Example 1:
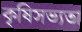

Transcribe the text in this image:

কৃষিসভ্যতা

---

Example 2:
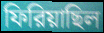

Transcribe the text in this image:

ফিরিয়াছিল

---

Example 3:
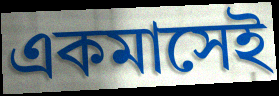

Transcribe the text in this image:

একমাসেই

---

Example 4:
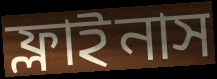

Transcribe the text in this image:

ফ্লাইনাস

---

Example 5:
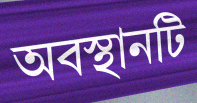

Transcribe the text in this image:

অবস্থানটি